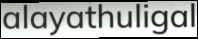
alayathuligal